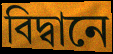
বিদ্বানে